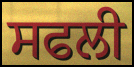
ਸਫਲੀ